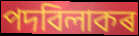
পদবিলাকৰ